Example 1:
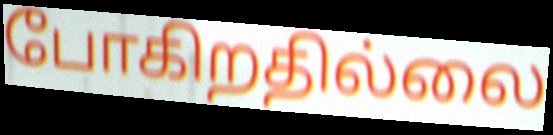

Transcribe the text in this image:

போகிறதில்லை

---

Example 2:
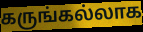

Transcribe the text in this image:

கருங்கல்லாக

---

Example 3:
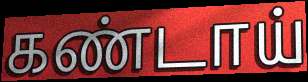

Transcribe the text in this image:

கண்டாய்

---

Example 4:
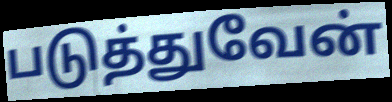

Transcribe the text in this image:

படுத்துவேன்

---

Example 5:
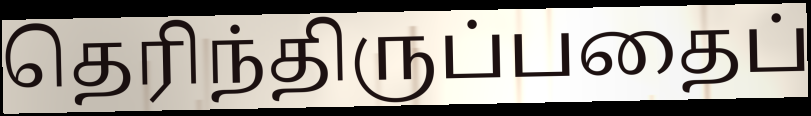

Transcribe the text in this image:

தெரிந்திருப்பதைப்